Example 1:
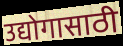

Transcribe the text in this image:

उद्योगासाठी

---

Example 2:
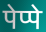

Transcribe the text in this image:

पेप्पे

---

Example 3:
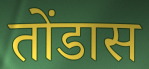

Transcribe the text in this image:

तोंडास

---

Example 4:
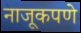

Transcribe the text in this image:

नाजूकपणे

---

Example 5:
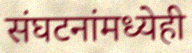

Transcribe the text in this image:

संघटनांमध्येही